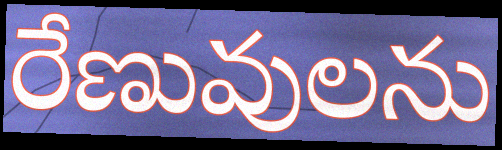
రేణువులను